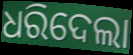
ଧରିଦେଲା